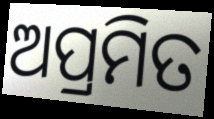
ଅପ୍ରମିତ